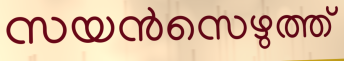
സയൻസെഴുത്ത്